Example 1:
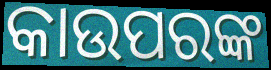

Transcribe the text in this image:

କାଉପରଙ୍କ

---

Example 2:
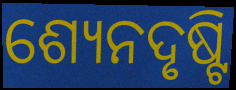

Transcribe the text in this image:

ଶ୍ୟେନଦୃଷ୍ଟି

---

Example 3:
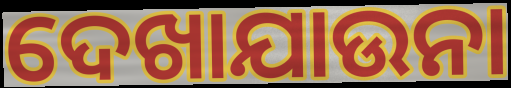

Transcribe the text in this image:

ଦେଖାଯାଉନା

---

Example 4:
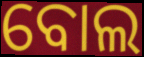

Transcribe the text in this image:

ବୋଲ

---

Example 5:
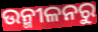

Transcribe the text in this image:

ଉନ୍ମୀଳନରୁ